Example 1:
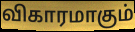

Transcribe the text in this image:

விகாரமாகும்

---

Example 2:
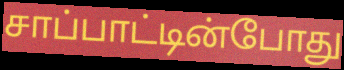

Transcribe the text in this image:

சாப்பாட்டின்போது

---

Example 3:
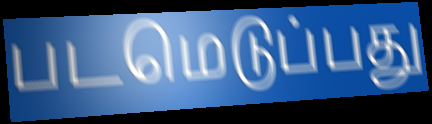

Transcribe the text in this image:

படமெடுப்பது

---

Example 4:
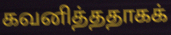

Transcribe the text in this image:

கவனித்ததாகக்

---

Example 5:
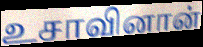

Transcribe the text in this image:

உசாவினான்